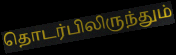
தொடர்பிலிருந்தும்